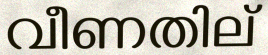
വീണതില്